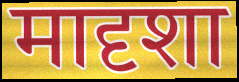
मादृशा